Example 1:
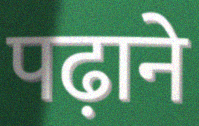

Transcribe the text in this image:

पढ़ाने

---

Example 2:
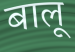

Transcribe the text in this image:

बालू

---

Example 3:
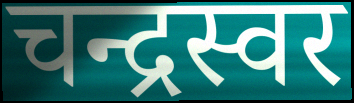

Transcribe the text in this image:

चन्द्रस्वर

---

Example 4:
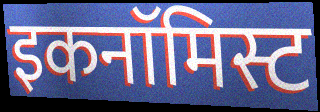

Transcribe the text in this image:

इकनॉमिस्‍ट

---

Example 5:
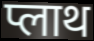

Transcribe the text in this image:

प्लाथ